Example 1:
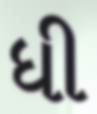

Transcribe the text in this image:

ધી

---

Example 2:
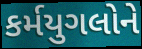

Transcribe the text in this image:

કર્મયુગલોને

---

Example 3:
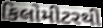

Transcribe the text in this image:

કિલોમીટરથી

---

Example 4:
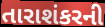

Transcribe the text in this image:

તારાશંકરની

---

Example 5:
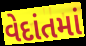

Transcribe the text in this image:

વેદાંતમાં